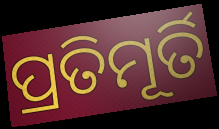
ପ୍ରତିମୂର୍ତି